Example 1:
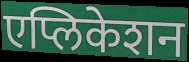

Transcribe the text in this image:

एप्लिकेशन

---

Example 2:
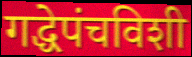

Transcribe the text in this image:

गद्धेपंचविशी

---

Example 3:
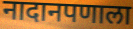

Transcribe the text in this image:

नादानपणाला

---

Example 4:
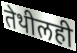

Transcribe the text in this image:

तेथीलही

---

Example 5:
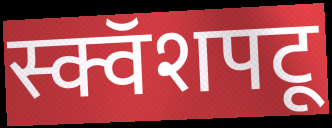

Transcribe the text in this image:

स्क्वॅशपटू